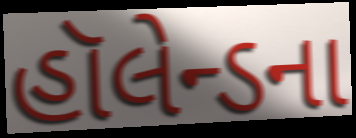
હૉલેન્ડના